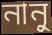
নানু